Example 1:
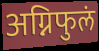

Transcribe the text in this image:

अग्निफुलं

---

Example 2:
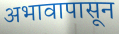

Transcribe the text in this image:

अभावापासून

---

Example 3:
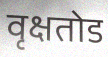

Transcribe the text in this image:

वृक्षतोड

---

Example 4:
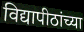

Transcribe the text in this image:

विद्यापीठांच्या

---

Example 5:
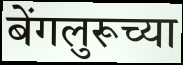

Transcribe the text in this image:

बेंगलुरूच्या